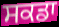
ਸਕਡਾ